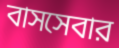
বাসসেবার